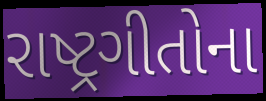
રાષ્ટ્રગીતોના